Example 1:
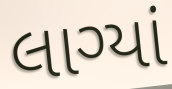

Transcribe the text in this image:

લાગ્યાં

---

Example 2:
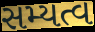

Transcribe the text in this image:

સમ્યત્વ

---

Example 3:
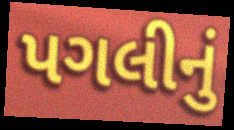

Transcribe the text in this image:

પગલીનું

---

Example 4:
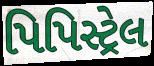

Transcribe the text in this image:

પિપિસ્ટ્રેલ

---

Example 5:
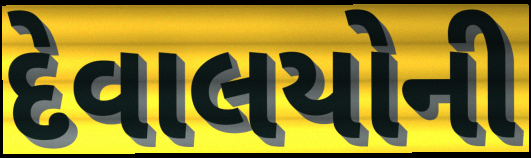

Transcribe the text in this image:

દેવાલયોની